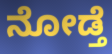
ನೋಡ್ತೆ